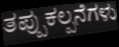
ತಪ್ಪುಕಲ್ಪನೆಗಳು